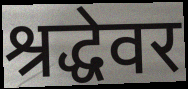
श्रद्धेवर